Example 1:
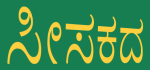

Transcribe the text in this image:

ಸೀಸಕದ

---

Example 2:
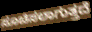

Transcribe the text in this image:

ಸೂಚಿಸಲಾಗುತ್ತದೆ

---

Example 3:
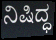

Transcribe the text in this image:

ನಿಷಿದ್ಧ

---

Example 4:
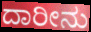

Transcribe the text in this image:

ದಾರೀನು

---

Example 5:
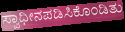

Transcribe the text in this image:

ಸ್ವಾಧೀನಪಡಿಸಿಕೊಂಡಿತು